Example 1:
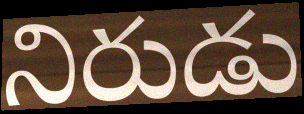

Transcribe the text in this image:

నిరుడు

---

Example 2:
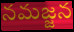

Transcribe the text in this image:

నమజ్జన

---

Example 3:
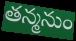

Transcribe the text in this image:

తన్మనుం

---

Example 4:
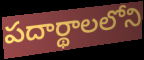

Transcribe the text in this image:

పదార్థాలలోని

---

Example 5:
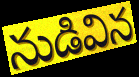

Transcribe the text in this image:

నుడివిన